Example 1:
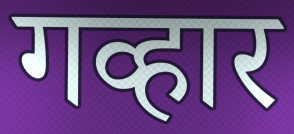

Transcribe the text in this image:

गव्हार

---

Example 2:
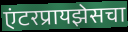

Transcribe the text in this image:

एंटरप्रायझेसचा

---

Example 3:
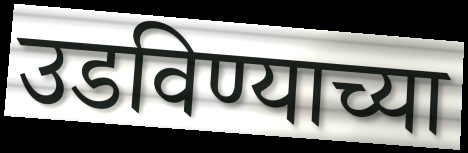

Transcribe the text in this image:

उडविण्याच्या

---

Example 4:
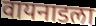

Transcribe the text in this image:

वायनाडला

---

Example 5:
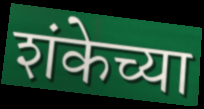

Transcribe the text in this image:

शंकेच्या